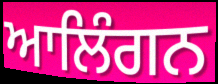
ਆਲਿੰਗਨ